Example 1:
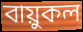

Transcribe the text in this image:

বায়ুকল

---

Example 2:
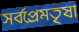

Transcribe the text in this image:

সর্বপ্রেমতৃষা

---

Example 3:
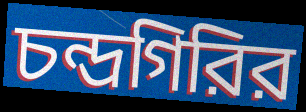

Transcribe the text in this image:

চন্দ্রগিরির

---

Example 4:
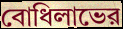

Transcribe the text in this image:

বোধিলাভের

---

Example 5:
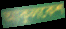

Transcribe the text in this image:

আকুলকেশ